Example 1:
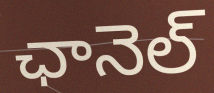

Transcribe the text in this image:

ఛానెల్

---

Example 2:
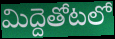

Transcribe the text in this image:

మిద్దెతోటలో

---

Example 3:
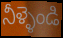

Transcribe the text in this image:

నీళ్ళెండి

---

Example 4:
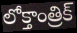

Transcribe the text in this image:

లోక్తాంత్రిక్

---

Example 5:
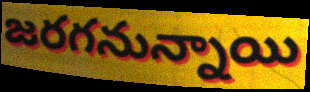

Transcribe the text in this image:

జరగనున్నాయి